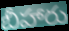
బీహారు